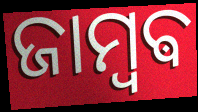
ଜାମ୍ବଵ